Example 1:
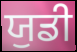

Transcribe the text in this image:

ਯੁਡੀ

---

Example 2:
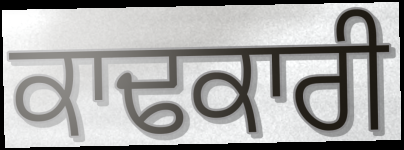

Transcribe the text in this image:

ਕਾਢਕਾਰੀ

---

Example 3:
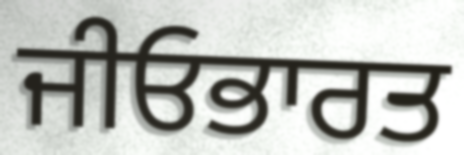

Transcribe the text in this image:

ਜੀਓਭਾਰਤ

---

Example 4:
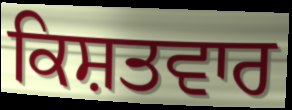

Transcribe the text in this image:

ਕਿਸ਼ਤਵਾਰ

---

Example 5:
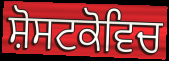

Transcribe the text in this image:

ਸ਼ੋਸਟਕੋਵਿਚ